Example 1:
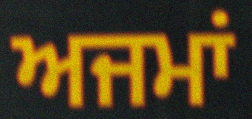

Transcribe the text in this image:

ਅਜਮਾਂ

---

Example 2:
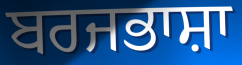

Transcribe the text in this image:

ਬਰਜਭਾਸ਼ਾ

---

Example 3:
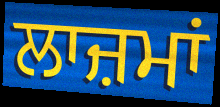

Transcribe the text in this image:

ਲਾਜ਼ਮਾਂ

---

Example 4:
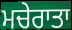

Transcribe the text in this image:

ਮਚੇਰਾਤਾ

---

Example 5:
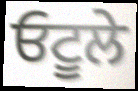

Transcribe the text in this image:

ਓਟੂਲੇ